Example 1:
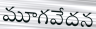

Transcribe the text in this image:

మూగవేదన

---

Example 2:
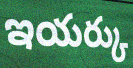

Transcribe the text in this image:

ఇయర్కు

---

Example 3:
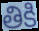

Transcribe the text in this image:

తికి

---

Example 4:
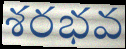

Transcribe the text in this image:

శరభవ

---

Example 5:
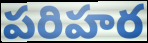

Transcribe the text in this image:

పరిహర